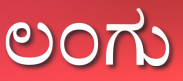
ಲಂಗು